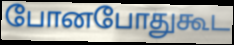
போனபோதுகூட